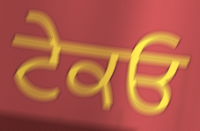
ਟੇਕਓ